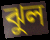
ঝুল